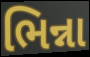
ભિન્ના